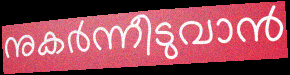
നുകർന്നീടുവാൻ